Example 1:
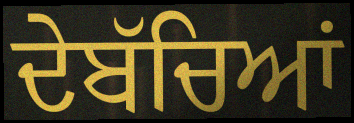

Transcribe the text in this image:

ਦੇਬੱਚਿਆਂ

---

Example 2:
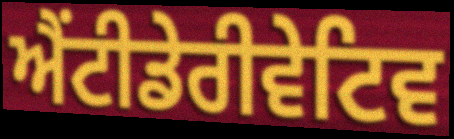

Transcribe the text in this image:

ਐਂਟੀਡੇਰੀਵੇਟਿਵ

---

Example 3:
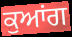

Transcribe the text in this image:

ਕੁਆਂਗ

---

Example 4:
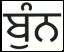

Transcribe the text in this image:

ਬੁੰਨ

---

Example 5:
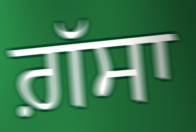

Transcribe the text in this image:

ਗ਼ੱਸਾ